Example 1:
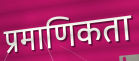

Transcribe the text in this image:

प्रमाणिकता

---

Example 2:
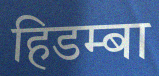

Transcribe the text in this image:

हिडम्बा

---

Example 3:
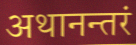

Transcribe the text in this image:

अथानन्तरं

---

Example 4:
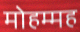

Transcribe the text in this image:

मोहम्मह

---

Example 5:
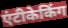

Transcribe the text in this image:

एंटीकेकिंग